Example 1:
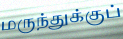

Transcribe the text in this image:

மருந்துக்குப்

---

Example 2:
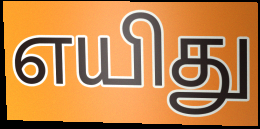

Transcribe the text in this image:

எயிது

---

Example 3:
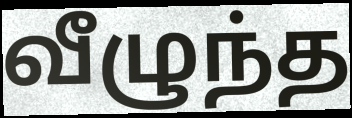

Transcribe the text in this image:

வீழுந்த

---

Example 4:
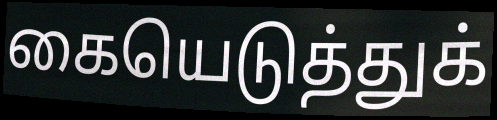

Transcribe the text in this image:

கையெடுத்துக்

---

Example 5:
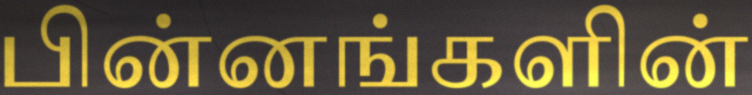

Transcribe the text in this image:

பின்னங்களின்